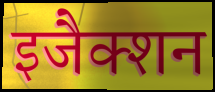
इजैक्शन